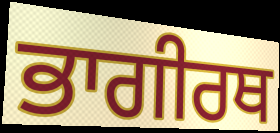
ਭਾਗੀਰਥ